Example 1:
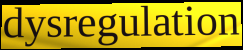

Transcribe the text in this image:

dysregulation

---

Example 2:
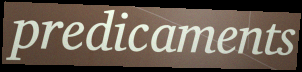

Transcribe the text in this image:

predicaments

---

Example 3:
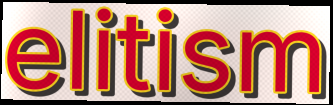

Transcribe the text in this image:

elitism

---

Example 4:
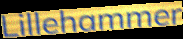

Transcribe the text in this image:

Lillehammer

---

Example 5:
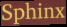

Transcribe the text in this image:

Sphinx